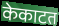
केकाटत